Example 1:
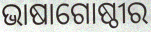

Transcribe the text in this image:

ଭାଷାଗୋଷ୍ଠୀର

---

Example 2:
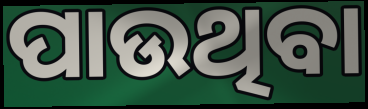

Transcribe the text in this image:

ପାଉଥିବା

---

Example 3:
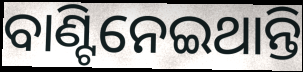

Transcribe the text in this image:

ବାଣ୍ଟିନେଇଥାନ୍ତି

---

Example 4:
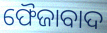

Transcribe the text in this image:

ଫୈଜାବାଦ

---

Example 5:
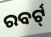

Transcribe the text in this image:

ରବର୍ଟ୍